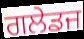
ਗਲੇਡਜ